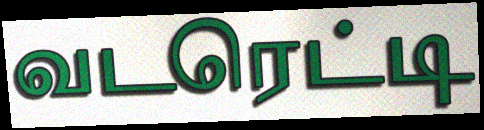
வடரெட்டி